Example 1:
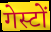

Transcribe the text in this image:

गेस्टों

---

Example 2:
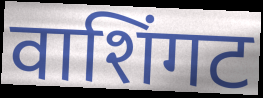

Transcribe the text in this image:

वाशिंगट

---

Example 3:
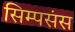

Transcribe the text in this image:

सिम्पसंस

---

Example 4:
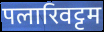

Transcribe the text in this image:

पलारिवट्टम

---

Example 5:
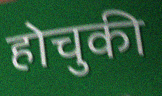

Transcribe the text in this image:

होचुकी